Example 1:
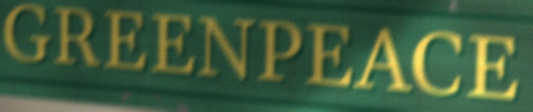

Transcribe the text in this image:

GREENPEACE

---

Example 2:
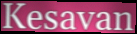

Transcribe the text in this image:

Kesavan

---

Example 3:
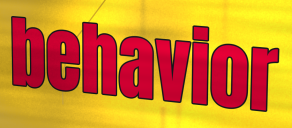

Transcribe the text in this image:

behavior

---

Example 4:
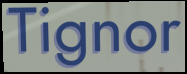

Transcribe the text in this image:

Tignor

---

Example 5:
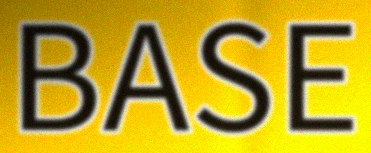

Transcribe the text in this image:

BASE